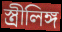
স্ত্ৰীলিঙ্গ